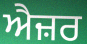
ਐਜ਼ਰ